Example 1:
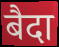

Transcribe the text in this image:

बैदा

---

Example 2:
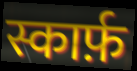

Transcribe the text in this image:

स्कार्फ़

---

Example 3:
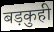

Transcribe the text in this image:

बड़कुही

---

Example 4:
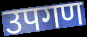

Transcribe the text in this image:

उपगण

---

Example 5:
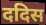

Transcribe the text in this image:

ददिस